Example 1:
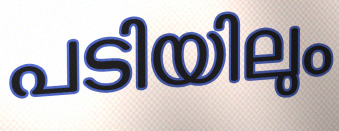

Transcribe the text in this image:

പടിയിലും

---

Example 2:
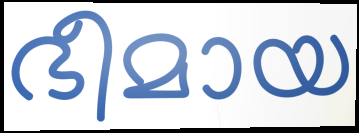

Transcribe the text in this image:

ഭീമായ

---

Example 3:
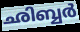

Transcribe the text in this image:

ഛിബ്ബർ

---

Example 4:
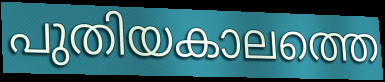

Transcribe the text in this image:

പുതിയകാലത്തെ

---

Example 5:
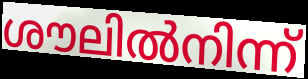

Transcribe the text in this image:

ശൗലിൽനിന്ന്